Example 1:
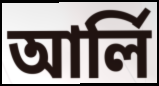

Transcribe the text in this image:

আর্লি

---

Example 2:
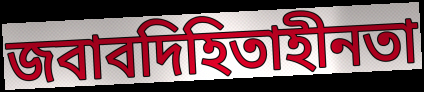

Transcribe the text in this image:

জবাবদিহিতাহীনতা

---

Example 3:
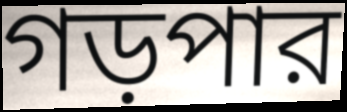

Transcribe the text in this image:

গড়পার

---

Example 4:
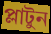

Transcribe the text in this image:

প্লাটুন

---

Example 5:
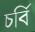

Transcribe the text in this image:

চর্বি